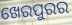
ଖେରପୁରର